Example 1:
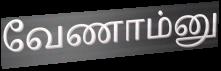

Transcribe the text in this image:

வேணாம்னு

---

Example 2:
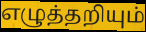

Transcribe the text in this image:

எழுத்தறியும்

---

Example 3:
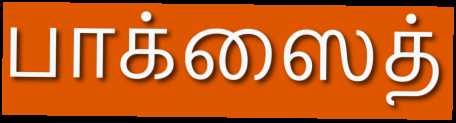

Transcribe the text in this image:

பாக்ஸைத்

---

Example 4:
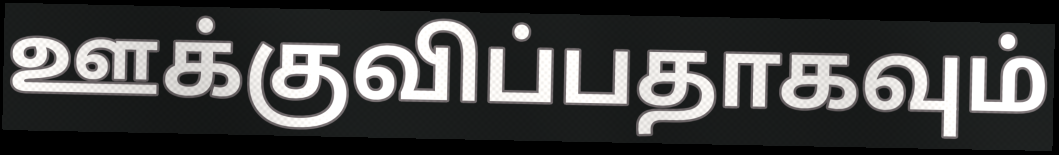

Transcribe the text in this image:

ஊக்குவிப்பதாகவும்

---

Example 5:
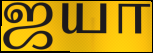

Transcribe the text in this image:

ஜயா